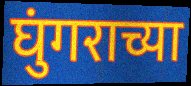
घुंगराच्या